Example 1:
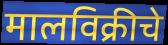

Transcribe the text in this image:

मालविक्रीचे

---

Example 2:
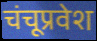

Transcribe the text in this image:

चंचूप्रवेश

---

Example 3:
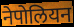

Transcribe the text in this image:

नेपोलियन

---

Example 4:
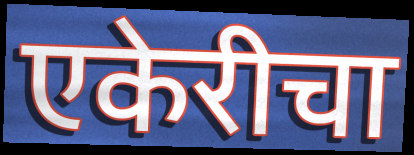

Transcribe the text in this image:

एकेरीचा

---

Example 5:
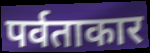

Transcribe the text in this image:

पर्वताकार